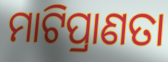
ମାଟିପ୍ରାଣତା